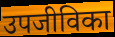
उपजीविका